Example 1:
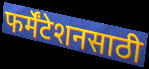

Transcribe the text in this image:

फर्मेंटेशनसाठी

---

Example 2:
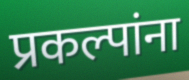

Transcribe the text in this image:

प्रकल्पांना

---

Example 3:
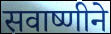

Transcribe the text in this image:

सवाष्णीने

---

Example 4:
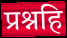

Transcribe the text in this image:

प्रश्नहि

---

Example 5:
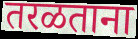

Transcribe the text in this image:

तरळताना